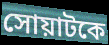
সোয়াটকে